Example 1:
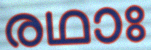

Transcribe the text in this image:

രഥാഃ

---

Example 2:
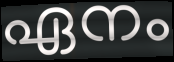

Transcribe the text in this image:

ഏനം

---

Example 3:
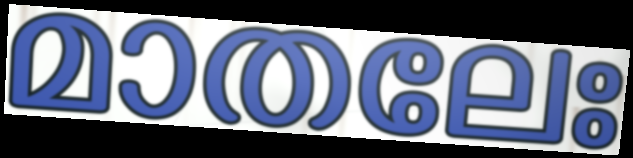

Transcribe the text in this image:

മാതലേഃ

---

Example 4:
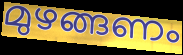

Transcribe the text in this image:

മുഴങ്ങണം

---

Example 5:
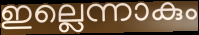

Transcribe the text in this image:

ഇല്ലെന്നാകും